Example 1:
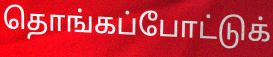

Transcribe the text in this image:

தொங்கப்போட்டுக்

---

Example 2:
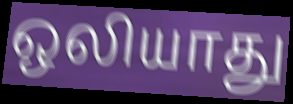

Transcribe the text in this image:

ஒலியாது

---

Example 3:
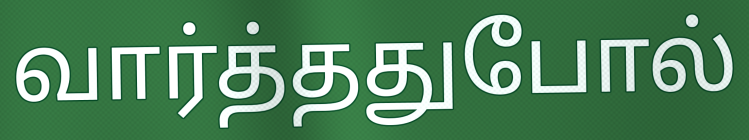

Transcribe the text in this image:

வார்த்ததுபோல்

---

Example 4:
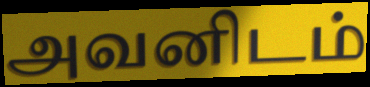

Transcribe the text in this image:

அவனிடம்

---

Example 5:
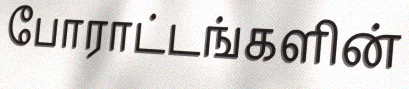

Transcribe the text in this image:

போராட்டங்களின்